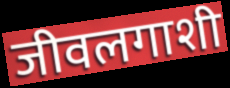
जीवलगाशी